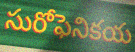
సురోఫెనికయ